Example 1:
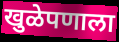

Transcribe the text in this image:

खुळेपणाला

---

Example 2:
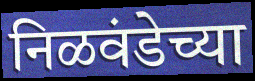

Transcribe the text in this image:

निळवंडेच्या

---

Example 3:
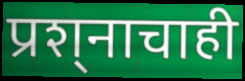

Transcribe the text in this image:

प्रश्नाचाही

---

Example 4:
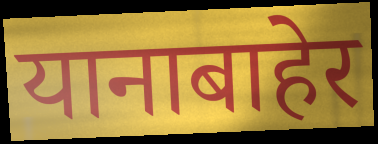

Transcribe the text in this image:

यानाबाहेर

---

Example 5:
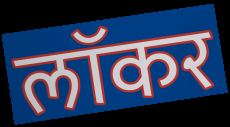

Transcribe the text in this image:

लॉकर